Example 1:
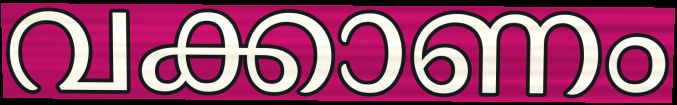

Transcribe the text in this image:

വക്കാണം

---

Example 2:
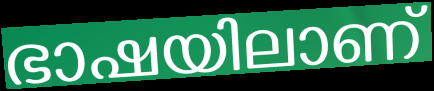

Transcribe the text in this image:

ഭാഷയിലാണ്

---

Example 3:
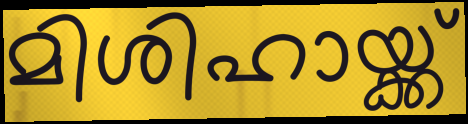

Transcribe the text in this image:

മിശിഹായ്ക്ക്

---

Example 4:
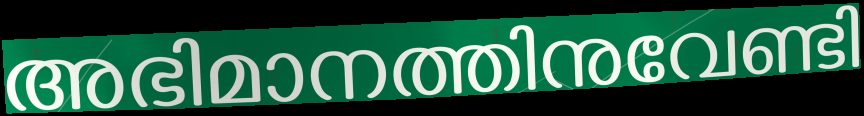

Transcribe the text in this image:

അഭിമാനത്തിനുവേണ്ടി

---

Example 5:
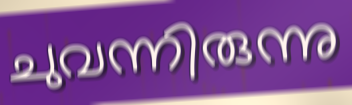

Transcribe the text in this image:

ചുവന്നിരുന്നു